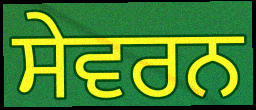
ਸੇਵਰਨ